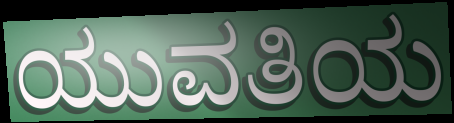
ಯುವತಿಯ